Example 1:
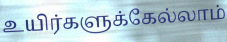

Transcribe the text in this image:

உயிர்களுக்கேல்லாம்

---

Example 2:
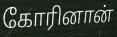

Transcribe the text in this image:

கோரினான்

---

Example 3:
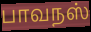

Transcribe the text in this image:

பாவநஸ்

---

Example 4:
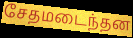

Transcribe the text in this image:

சேதமடைந்தன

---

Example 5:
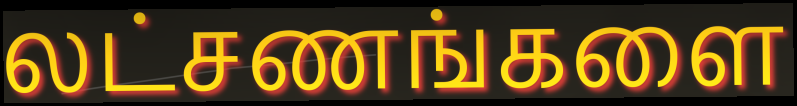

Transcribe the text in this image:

லட்சணங்களை